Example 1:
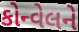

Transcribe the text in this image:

કોન્વેલને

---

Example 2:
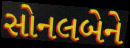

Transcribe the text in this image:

સોનલબેને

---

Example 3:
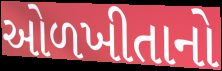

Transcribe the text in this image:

ઓળખીતાનો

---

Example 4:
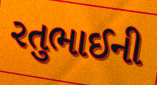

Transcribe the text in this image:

રતુભાઈની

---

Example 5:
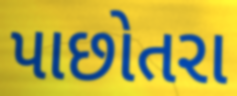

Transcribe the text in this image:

પાછોતરા